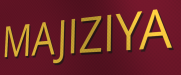
MAJIZIYA